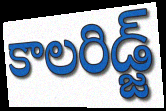
కాలరిడ్జ్